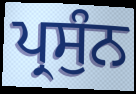
ਪ੍ਰਸੁੰਨ